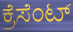
ಕ್ರೆಸೆಂಟ್